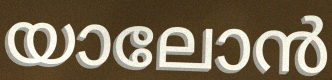
യാലോൻ